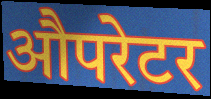
औपरेटर